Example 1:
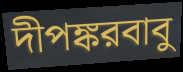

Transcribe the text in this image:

দীপঙ্করবাবু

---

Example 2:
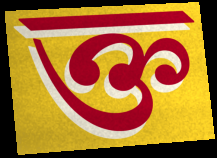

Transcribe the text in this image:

ক্ত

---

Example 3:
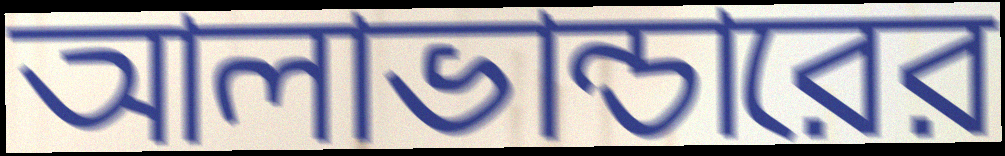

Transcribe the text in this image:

আলাভান্ডারের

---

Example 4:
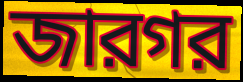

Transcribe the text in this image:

জারগর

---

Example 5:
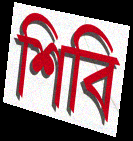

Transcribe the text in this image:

শিবি